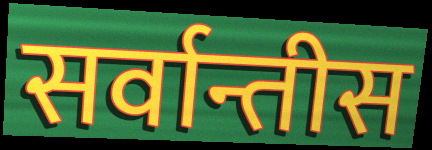
सर्वान्तीस